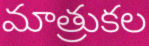
మాత్రుకల